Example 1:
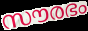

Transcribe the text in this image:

സൗരഭം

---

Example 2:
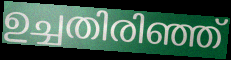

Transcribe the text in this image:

ഉച്ചതിരിഞ്ഞ്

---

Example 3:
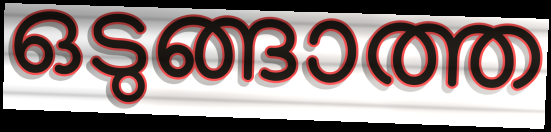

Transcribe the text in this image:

ഒടുങ്ങാത്ത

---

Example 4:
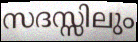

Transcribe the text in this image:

സദസ്സിലും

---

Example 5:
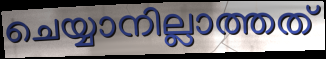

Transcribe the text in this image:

ചെയ്യാനില്ലാത്തത്